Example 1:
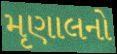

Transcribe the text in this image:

મૃણાલનો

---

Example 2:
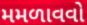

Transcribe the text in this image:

મમળાવવો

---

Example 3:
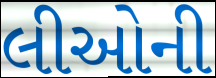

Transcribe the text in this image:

લીઓની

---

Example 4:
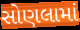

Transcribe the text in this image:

સોણલામાં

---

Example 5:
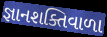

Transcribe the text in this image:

જ્ઞાનશક્તિવાળા